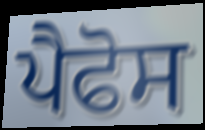
ਪੈਫੋਸ